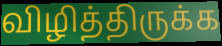
விழித்திருக்க